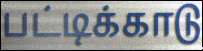
பட்டிக்காடு